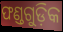
ଫଣ୍ଡଗୁଡ଼ିକ